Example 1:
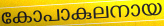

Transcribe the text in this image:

കോപാകുലനായ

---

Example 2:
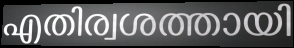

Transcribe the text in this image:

എതിര്വശത്തായി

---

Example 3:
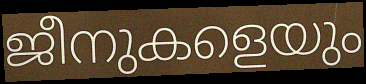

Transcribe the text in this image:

ജീനുകളെയും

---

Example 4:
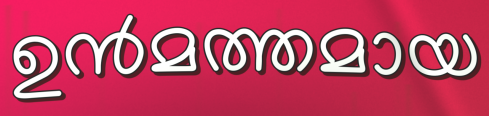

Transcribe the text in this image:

ഉൻമത്തമായ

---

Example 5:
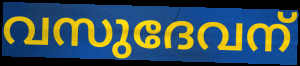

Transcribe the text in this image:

വസുദേവന്